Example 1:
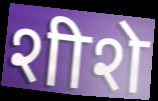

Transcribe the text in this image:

शीशे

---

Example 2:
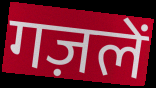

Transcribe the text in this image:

गज़लें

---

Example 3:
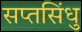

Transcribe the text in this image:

सप्तसिंधु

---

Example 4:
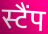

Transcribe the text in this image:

स्टैंप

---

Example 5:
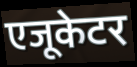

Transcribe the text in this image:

एजूकेटर